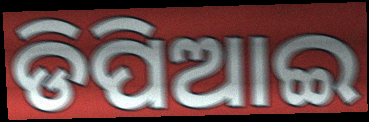
ଡିପିଆଇ